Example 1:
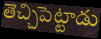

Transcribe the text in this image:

తెచ్చిపెట్టాడు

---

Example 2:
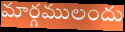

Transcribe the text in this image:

మార్గములందు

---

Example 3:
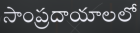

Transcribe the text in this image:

సాంప్రదాయాలలో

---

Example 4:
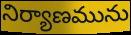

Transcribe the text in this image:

నిర్యాణమును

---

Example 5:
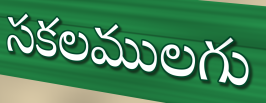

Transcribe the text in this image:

సకలములగు